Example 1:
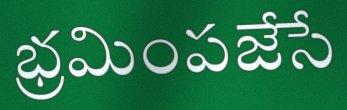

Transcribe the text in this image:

భ్రమింపజేసే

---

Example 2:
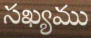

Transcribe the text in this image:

సఖ్యము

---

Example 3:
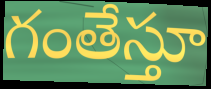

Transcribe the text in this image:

గంతేస్తూ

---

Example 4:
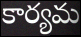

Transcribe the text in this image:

కార్యమ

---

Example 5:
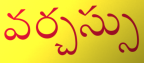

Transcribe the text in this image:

వర్చస్సు